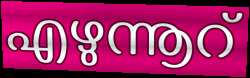
എഴുന്നൂറ്